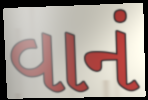
વાનં